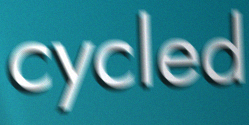
cycled